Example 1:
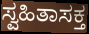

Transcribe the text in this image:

ಸ್ವಹಿತಾಸಕ್ತ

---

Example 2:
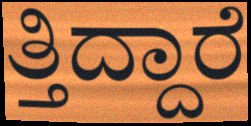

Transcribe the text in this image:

ತ್ತಿದ್ದಾರೆ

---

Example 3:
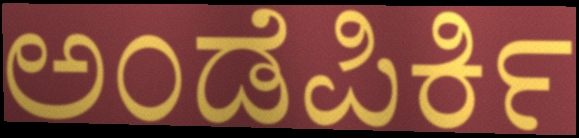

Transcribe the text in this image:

ಅಂಡೆಪಿರ್ಕಿ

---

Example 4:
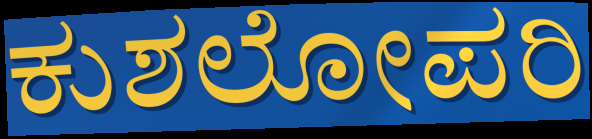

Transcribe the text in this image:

ಕುಶಲೋಪರಿ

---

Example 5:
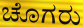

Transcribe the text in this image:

ಚೊಗರು